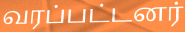
வரப்பட்டனர்